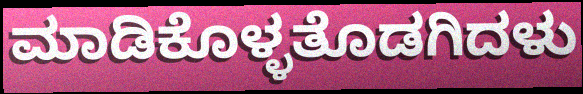
ಮಾಡಿಕೊಳ್ಳತೊಡಗಿದಳು